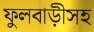
ফুলবাড়ীসহ